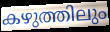
കഴുത്തിലും